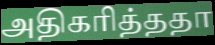
அதிகரித்ததா